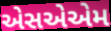
એસએએમ